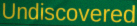
Undiscovered